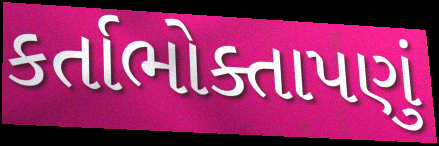
કર્તાભોક્તાપણું